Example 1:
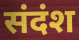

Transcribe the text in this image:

संदंश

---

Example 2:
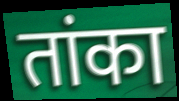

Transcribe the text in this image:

तांका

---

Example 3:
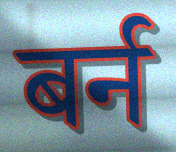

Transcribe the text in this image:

बर्न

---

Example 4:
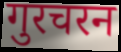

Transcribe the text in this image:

गुरचरन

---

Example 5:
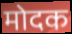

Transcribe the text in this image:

मोदक